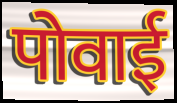
पोवाई